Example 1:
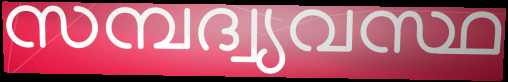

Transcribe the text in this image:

സമ്പദ്വ്യവസ്ഥ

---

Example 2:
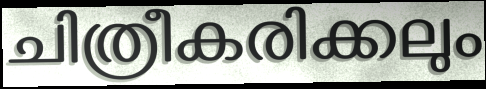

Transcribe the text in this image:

ചിത്രീകരിക്കലും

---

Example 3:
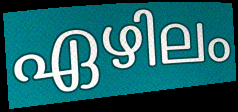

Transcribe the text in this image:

ഏഴിലം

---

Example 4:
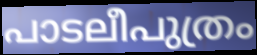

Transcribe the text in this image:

പാടലീപുത്രം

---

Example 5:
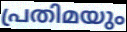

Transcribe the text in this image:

പ്രതിമയും